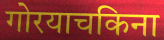
गोरयाचकिना